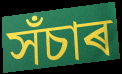
সঁচাৰ